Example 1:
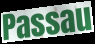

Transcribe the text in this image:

Passau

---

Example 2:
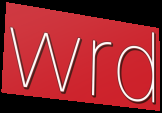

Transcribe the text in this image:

wrd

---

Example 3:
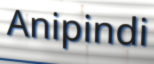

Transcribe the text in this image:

Anipindi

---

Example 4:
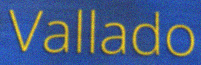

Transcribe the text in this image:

Vallado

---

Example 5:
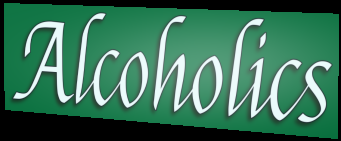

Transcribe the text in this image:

Alcoholics